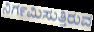
ನಿರ್ಗಮಿಸುತ್ತಿರುವ